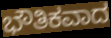
ಭೌತಿಕವಾದ